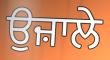
ਉਜ਼ਾਲੇ